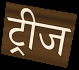
ट्रीज